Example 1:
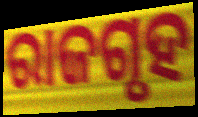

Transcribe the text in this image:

ରାଜଗୃହ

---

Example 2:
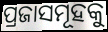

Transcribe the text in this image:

ପ୍ରଜାସମୂହକୁ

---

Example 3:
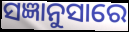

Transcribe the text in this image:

ସଜ୍ଞାନୁସାରେ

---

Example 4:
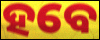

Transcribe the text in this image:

ହବେ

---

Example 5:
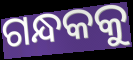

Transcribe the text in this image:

ଗନ୍ଧକକୁ